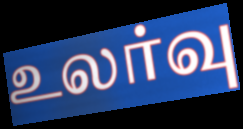
உலர்வு